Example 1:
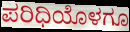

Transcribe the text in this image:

ಪರಿಧಿಯೊಳಗೂ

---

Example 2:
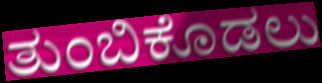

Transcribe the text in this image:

ತುಂಬಿಕೊಡಲು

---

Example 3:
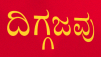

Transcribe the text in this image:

ದಿಗ್ಗಜವು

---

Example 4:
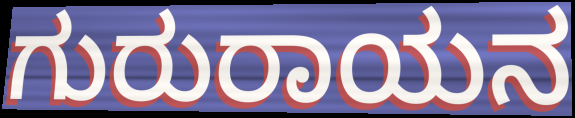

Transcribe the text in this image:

ಗುರುರಾಯನ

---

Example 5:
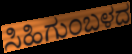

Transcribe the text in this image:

ಸಿಹಿಗುಂಬಳದ